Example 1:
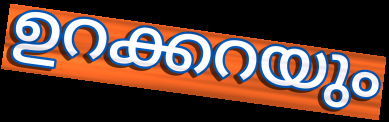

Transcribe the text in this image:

ഉറക്കറയും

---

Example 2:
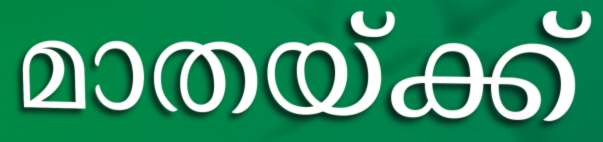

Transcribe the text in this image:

മാതയ്ക്ക്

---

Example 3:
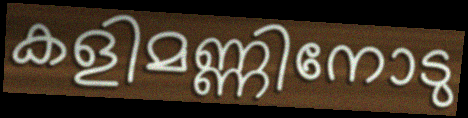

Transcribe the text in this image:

കളിമണ്ണിനോടു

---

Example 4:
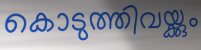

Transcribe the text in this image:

കൊടുത്തിവയ്ക്കും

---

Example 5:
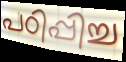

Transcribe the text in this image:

പഠിപ്പിച്ച